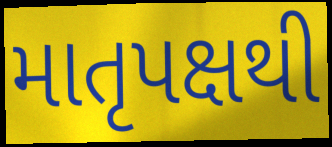
માતૃપક્ષથી